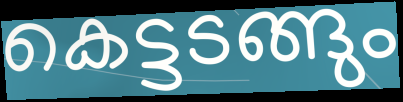
കെട്ടടങ്ങും